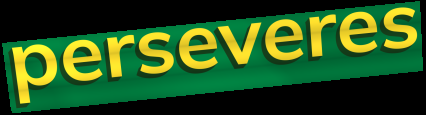
perseveres